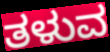
ತಳುವ